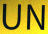
UN